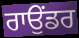
ਰਾਉਂਡਰ